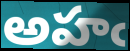
అహఁ